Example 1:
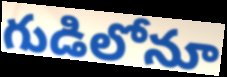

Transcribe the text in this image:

గుడిలోనూ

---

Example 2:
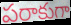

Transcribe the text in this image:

పరాకుగా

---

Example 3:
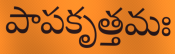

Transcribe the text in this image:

పాపకృత్తమః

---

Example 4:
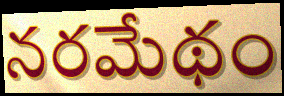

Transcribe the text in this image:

నరమేథం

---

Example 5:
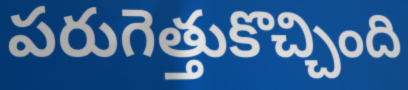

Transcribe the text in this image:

పరుగెత్తుకొచ్చింది